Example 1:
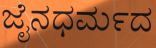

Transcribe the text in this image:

ಜೈನಧರ್ಮದ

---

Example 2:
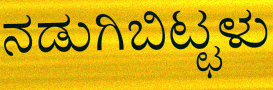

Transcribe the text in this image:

ನಡುಗಿಬಿಟ್ಟಳು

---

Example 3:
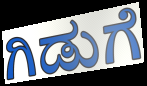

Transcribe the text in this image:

ಗಿಡುಗೆ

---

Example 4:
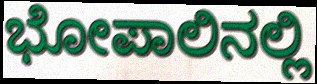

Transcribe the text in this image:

ಭೋಪಾಲಿನಲ್ಲಿ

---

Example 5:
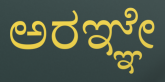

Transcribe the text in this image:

ಅರಞ್ಞೇ